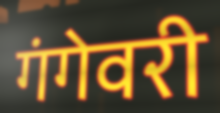
गंगेवरी